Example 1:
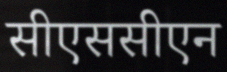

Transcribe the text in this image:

सीएससीएन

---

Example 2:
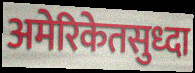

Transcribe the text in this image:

अमेरिकेतसुध्दा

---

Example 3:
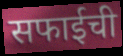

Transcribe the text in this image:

सफाईची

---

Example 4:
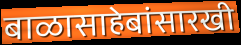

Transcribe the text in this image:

बाळासाहेबांसारखी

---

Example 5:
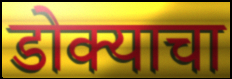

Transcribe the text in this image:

डोक्याचा